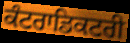
ਕੰਟਰਾਡਿਕਟਰੀ